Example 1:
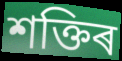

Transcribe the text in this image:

শক্তিৰ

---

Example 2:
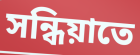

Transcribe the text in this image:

সন্ধিয়াতে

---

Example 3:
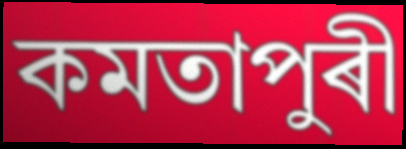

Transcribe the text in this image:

কমতাপুৰী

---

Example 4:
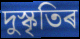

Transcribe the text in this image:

দুস্কৃতিৰ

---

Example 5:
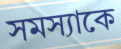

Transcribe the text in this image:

সমস্যাকে